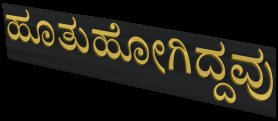
ಹೂತುಹೋಗಿದ್ದವು